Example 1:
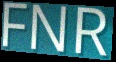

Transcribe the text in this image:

FNR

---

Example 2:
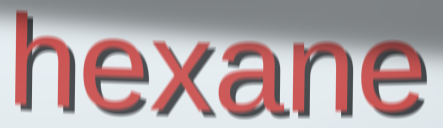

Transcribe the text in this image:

hexane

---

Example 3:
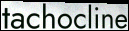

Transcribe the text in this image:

tachocline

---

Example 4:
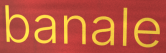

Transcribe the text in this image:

banale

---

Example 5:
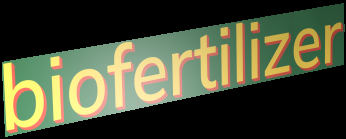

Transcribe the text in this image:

biofertilizer